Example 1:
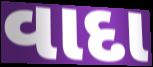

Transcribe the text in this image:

વાદા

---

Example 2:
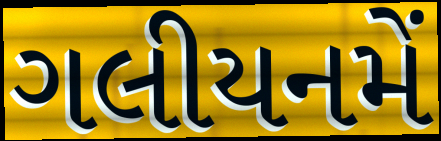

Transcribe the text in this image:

ગલીયનમેં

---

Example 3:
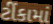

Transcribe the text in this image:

ટીંકામાં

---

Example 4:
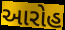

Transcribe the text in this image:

આરોહ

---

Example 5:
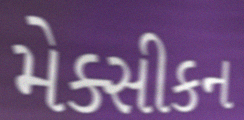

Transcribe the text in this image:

મેક્સીકન